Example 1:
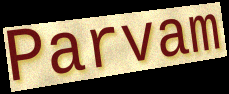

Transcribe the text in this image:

Parvam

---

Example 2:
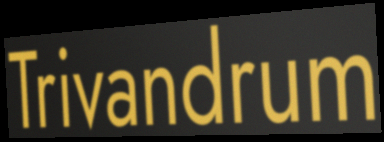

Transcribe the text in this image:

Trivandrum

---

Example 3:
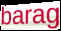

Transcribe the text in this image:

barag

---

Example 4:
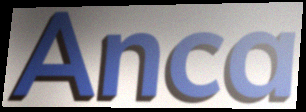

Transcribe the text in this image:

Anca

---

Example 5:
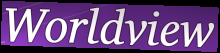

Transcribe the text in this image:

Worldview